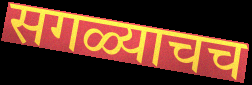
सगळ्याचच